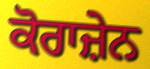
ਕੋਰਾਜ਼ੇਨ